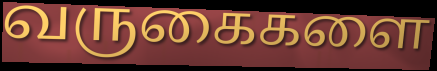
வருகைகளை